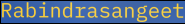
Rabindrasangeet